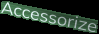
Accessorize